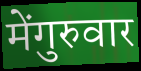
मेंगुरुवार